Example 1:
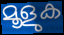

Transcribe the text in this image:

മൂളുക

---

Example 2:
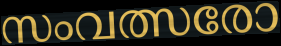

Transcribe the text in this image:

സംവത്സരോ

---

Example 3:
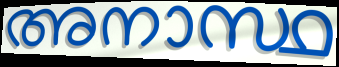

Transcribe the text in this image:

അനാസ്ഥ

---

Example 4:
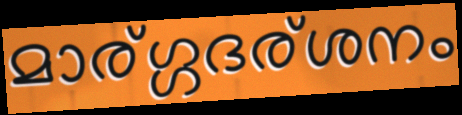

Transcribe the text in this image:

മാര്ഗ്ഗദര്ശനം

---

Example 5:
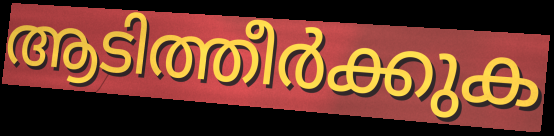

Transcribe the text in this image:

ആടിത്തീർക്കുക